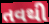
તવથી